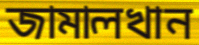
জামালখান